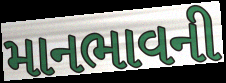
માનભાવની